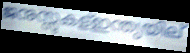
ജനുസ്സുകള്ഇന്ത്യയില്